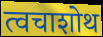
त्वचाशोथ